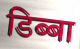
डिब्बा